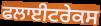
ਫਲਾਈਟਰੇਕਸ